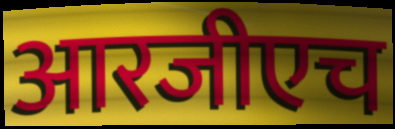
आरजीएच